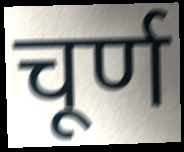
चूर्ण